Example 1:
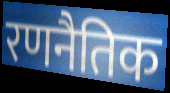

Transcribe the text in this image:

रणनैतिक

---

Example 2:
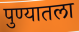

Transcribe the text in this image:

पुण्यातला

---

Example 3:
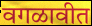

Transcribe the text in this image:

वगळावीत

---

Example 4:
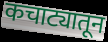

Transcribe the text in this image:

कचाट्यातून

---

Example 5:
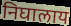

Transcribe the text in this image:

निघालाय